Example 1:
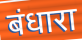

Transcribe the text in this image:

बंधारा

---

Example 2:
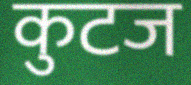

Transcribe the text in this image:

कुटज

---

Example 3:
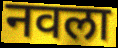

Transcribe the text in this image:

नवला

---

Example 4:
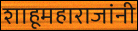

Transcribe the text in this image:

शाहूमहाराजांनी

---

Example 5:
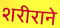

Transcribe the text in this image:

शरीराने